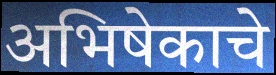
अभिषेकाचे